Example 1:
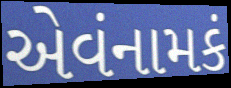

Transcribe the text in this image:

એવંનામકં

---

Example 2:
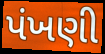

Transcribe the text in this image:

પંખણી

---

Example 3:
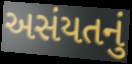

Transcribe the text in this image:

અસંયતનું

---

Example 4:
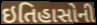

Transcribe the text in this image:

ઇતિહાસોની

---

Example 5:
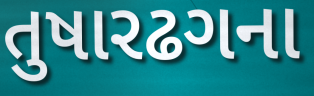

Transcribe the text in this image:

તુષારઢગના